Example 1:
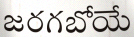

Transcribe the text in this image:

జరగబోయే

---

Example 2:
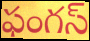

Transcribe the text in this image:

ఫంగస్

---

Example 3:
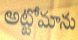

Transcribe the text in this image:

అట్టోమాను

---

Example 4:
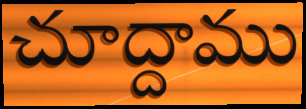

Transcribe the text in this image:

చూద్దాము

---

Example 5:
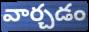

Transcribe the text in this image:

వార్చడం